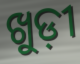
ଖୁଡ଼ୀ